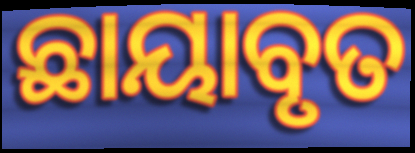
ଛାୟାବୃତ